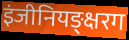
इंजीनियङ्क्षरग